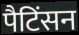
पैटिंसन